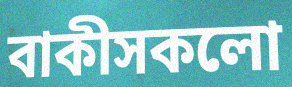
বাকীসকলো